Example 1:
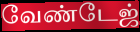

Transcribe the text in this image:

வேண்டேஜ்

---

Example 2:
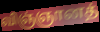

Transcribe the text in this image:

விஞ்ஞானத்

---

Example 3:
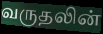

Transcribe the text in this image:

வருதலின்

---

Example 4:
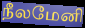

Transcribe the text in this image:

நீலமேனி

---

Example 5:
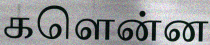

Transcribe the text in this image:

களென்ன